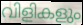
വിളികളും